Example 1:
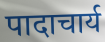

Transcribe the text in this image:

पादाचार्य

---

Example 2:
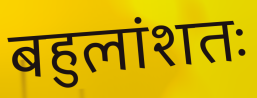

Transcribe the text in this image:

बहुलांशतः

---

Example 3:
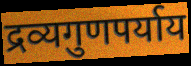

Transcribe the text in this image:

द्रव्यगुणपर्याय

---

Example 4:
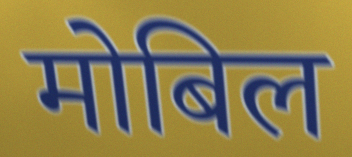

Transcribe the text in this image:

मोबिल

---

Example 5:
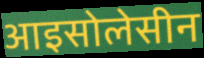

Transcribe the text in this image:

आइसोलेसीन